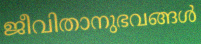
ജീവിതാനുഭവങ്ങൾ